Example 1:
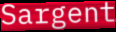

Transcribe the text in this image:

Sargent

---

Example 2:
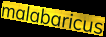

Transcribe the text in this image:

malabaricus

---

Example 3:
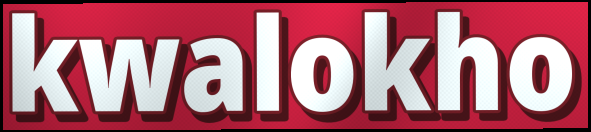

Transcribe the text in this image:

kwalokho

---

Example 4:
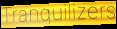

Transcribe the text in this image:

Tranquilizers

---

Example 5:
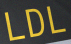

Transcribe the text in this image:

LDL